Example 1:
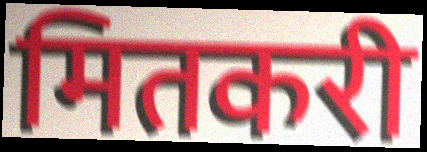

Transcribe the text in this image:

मितकरी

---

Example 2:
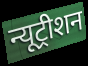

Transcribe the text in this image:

न्यूट्रीशन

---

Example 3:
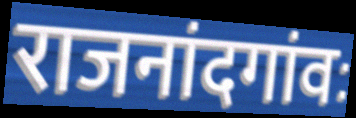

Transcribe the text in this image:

राजनांदगांवः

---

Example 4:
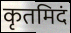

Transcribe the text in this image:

कृतमिदं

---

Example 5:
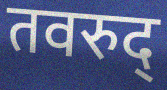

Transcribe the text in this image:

तवरुद्